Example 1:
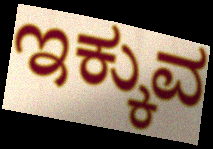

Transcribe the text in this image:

ಇಕ್ಕುವ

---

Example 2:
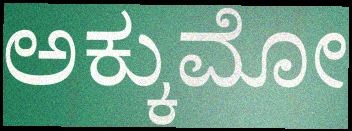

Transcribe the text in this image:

ಅಕ್ಕುಮೋ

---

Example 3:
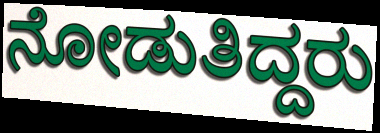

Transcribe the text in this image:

ನೋಡುತಿದ್ದರು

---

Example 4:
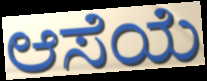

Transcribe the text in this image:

ಆಸೆಯೆ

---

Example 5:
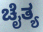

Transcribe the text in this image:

ಚೈತ್ಯ